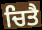
ਚਿਤੈ